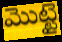
మొట్టై